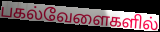
பகல்வேளைகளில்